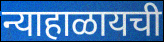
न्याहाळायची